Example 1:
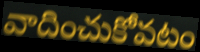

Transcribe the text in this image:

వాదించుకోవటం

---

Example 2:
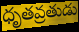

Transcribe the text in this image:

ధృతవ్రతుడు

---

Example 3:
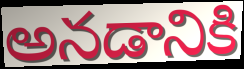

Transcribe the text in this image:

అనడానికి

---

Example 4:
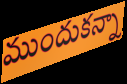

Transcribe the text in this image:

ముందుకన్నా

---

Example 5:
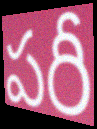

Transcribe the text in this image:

పరీ